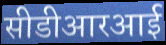
सीडीआरआई